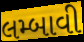
લમ્બાવી